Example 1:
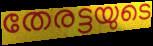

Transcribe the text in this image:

തേരട്ടയുടെ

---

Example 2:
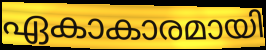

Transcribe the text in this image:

ഏകാകാരമായി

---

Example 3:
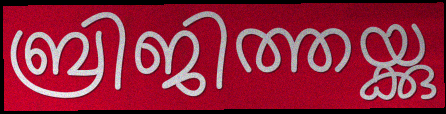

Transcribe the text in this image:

ബ്രിജിത്തയ്ക്കു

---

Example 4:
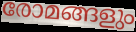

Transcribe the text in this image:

രോമങ്ങളും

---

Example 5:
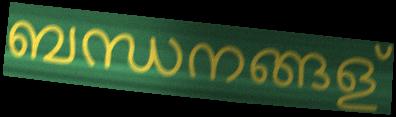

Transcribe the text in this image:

ബന്ധനങ്ങള്